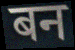
बन